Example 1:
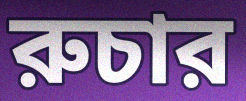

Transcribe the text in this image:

রুচার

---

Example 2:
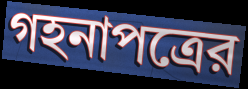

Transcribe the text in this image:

গহনাপত্রের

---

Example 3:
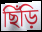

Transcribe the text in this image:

ছিঁড়ি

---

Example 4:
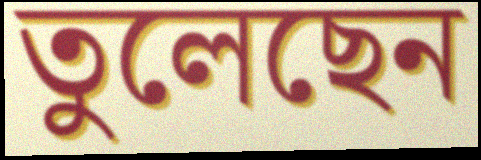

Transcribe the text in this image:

তুলেছেন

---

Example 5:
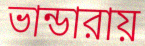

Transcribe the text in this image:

ভান্ডারায়